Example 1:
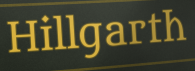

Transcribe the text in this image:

Hillgarth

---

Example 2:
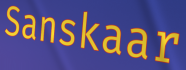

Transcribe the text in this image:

Sanskaar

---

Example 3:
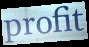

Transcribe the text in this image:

profit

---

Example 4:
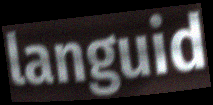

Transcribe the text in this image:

languid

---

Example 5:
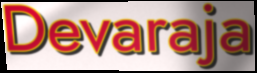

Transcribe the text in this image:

Devaraja